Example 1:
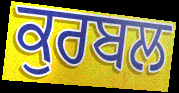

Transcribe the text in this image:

ਕੁਰਬਲ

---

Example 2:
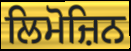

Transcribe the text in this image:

ਲਿਮੋਜ਼ਿਨ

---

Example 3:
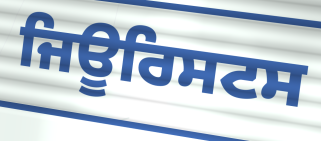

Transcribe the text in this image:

ਜਿਊਰਿਸਟਸ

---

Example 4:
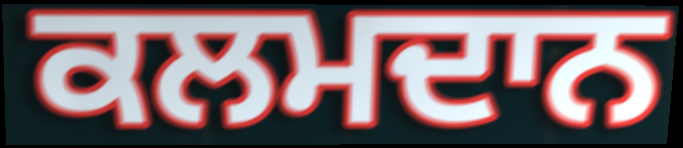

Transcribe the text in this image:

ਕਲਮਦਾਨ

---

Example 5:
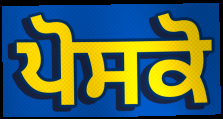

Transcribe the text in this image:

ਪੋਸਕੋ